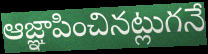
ఆజ్ఞాపించినట్లుగనే